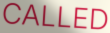
CALLED